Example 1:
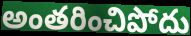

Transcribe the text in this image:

అంతరించిపోదు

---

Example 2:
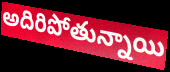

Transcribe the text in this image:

అదిరిపోతున్నాయి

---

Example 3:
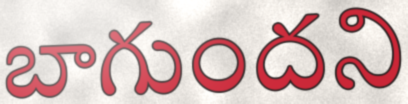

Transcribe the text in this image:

బాగుందని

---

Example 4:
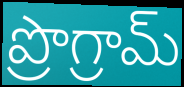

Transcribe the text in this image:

ప్రొగ్రామ్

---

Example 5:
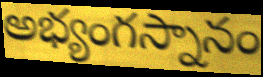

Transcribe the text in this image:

అభ్యంగస్నానం